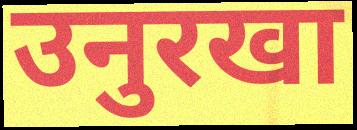
उनुरखा